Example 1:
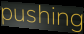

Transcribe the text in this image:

pushing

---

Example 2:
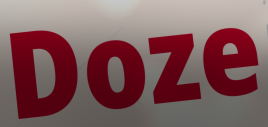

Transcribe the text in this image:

Doze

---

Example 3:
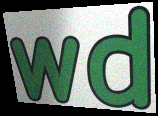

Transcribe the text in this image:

wd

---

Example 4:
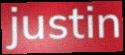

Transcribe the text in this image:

justin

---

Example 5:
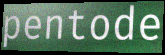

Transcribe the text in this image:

pentode